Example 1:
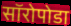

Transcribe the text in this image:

सॉरोपोडा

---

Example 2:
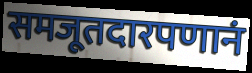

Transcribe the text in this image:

समजूतदारपणानं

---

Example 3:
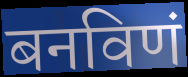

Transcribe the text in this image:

बनविणं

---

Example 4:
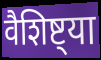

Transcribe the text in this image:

वैशिष्ट्या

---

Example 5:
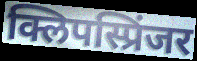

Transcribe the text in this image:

क्लिपस्प्रिंजर